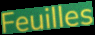
Feuilles